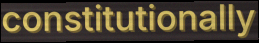
constitutionally